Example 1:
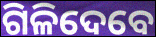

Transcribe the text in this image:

ଗିଳିଦେବେ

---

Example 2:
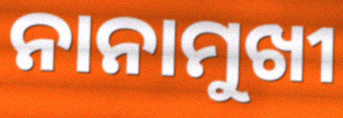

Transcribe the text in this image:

ନାନାମୁଖୀ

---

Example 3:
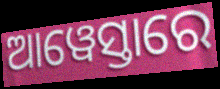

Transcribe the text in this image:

ଆୱେସ୍ତାରେ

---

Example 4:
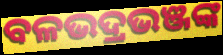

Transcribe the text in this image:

ବଳଭଦ୍ରଭଞ୍ଜଙ୍କ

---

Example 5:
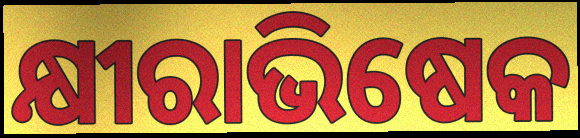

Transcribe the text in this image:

କ୍ଷୀରାଭିଷେକ